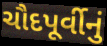
ચૌદપૂર્વીનું